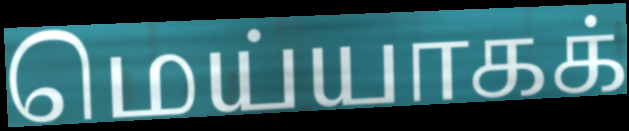
மெய்யாகக்